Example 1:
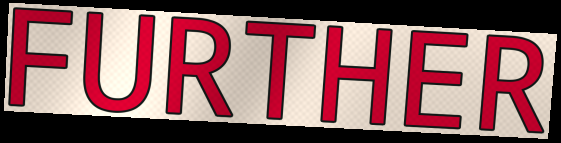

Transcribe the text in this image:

FURTHER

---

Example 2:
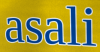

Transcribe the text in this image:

asali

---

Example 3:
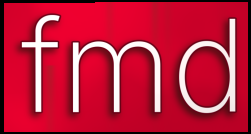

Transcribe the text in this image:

fmd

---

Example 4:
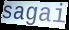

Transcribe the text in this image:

sagai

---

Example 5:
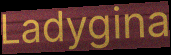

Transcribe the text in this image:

Ladygina